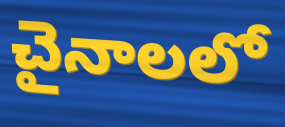
చైనాలలో